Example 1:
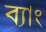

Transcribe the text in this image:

ব্যাং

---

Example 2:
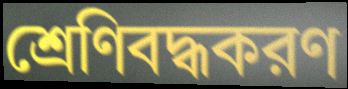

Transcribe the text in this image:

শ্রেণিবদ্ধকরণ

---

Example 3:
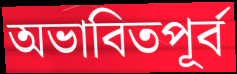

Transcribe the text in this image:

অভাবিতপূর্ব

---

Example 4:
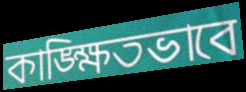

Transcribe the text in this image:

কাঙ্ক্ষিতভাবে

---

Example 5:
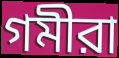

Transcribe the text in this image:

গমীরা